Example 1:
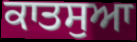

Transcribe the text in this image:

ਕਾਤਸੁਆ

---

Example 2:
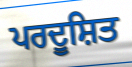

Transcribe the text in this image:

ਪਰਦੂਸ਼ਿਤ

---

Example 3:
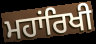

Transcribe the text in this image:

ਮਹਾਂਰਿਖੀ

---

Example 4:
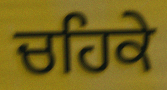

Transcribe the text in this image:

ਚਹਿਕੇ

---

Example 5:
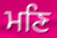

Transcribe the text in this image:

ਮਣਿ